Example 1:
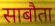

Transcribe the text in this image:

साबौता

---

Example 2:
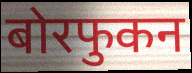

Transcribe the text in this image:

बोरफुकन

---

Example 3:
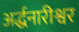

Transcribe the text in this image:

अर्द्धनारीश्वर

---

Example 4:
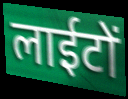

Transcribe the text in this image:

लाईटों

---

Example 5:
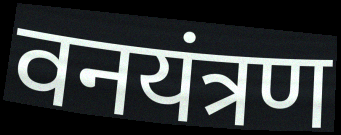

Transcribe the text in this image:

वनयंत्रण